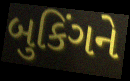
બુકિંગને